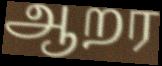
ஆறர